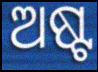
ଅଷ୍ଟ